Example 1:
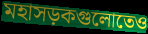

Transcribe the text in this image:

মহাসড়কগুলোতেও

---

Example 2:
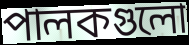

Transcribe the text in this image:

পালকগুলো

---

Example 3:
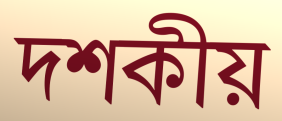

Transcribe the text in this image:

দশকীয়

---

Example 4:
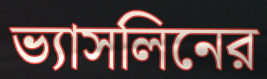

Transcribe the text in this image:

ভ্যাসলিনের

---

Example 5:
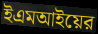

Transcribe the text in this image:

ইএমআইয়ের